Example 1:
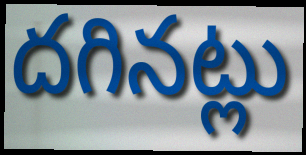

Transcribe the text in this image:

దగినట్లు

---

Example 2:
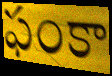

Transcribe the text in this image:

ఫంకా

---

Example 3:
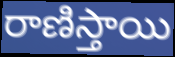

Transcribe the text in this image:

రాణిస్తాయి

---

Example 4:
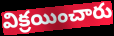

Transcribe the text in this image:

విక్రయించారు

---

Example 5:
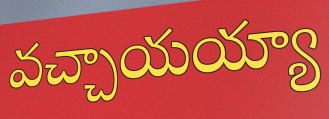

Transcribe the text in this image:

వచ్చాయయ్యా